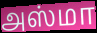
அஸ்மா